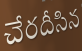
చేరదీసిన